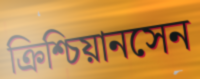
ক্রিশ্চিয়ানসেন